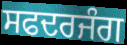
ਸਫਦਰਜੰਗ